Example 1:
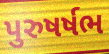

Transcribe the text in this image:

પુરુષર્ષભ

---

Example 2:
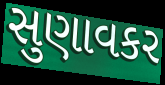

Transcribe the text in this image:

સુણાવકર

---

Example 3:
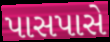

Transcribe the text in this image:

પાસપાસે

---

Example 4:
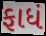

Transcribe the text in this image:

ફાધં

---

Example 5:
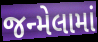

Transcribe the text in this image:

જન્મેલામાં